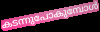
കടന്നുപോകുമ്പോൾ